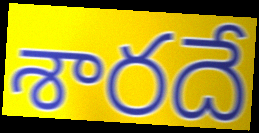
శారదే